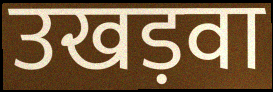
उखड़वा